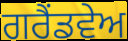
ਗਰੈਂਡਵੇਅ